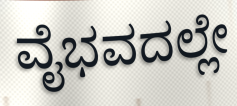
ವೈಭವದಲ್ಲೇ